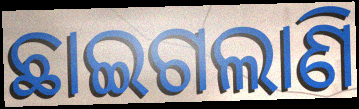
ଛାଇଗଲାଣି